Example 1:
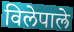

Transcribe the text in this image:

विलेपाल्रे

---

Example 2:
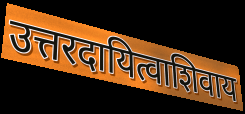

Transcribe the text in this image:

उत्तरदायित्वाशिवाय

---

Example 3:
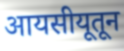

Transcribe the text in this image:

आयसीयूतून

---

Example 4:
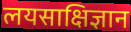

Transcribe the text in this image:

लयसाक्षिज्ञान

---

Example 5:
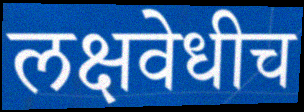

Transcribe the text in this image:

लक्षवेधीच